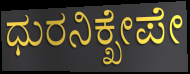
ಧುರನಿಕ್ಖೇಪೇ